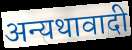
अन्यथावादी